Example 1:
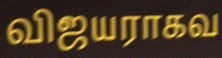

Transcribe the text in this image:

விஜயராகவ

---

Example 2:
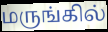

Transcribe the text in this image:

மருங்கில்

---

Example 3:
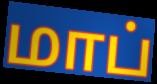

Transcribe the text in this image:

மாப்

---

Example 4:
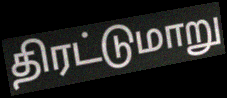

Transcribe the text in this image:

திரட்டுமாறு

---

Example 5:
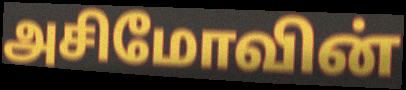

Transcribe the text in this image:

அசிமோவின்